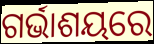
ଗର୍ଭାଶୟରେ